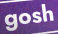
gosh